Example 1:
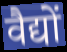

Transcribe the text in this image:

वैद्यों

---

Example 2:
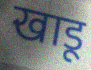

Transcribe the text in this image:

खाडू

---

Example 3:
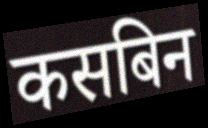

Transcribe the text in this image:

कसबिन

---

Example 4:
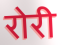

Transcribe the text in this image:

रोरी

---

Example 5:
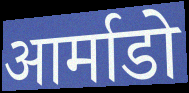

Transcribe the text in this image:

आर्माडो